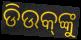
ଡିଉକ୍‌ଙ୍କୁ